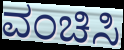
ವಂಚಿಸಿ